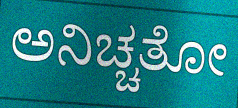
ಅನಿಚ್ಚತೋ